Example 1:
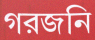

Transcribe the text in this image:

গরজনি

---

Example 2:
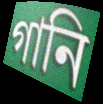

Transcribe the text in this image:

গানি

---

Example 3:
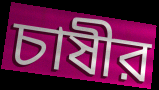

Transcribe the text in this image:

চাষীর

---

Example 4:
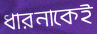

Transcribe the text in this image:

ধারনাকেই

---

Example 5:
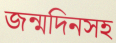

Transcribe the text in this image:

জন্মদিনসহ